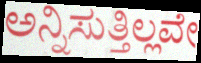
ಅನ್ನಿಸುತ್ತಿಲ್ಲವೇ